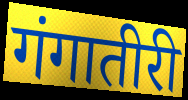
गंगातीरी